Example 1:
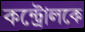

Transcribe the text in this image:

কন্ট্রোলকে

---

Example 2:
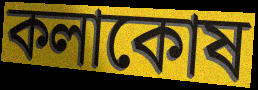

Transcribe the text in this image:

কলাকোষ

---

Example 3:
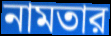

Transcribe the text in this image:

নামতার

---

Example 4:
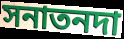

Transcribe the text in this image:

সনাতনদা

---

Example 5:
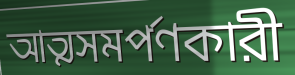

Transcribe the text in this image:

আত্মসমর্পণকারী